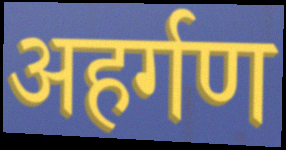
अहर्गण